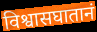
विश्वासघातानं